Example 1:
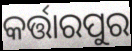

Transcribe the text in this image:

କର୍ତ୍ତାରପୁର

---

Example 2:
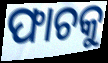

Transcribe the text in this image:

ଫାଚକୁ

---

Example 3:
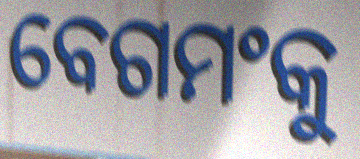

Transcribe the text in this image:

ବେଗମଂକୁ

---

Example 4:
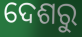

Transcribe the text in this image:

ଦେଶରୁ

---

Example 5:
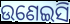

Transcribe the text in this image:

ଉଣେଇସି